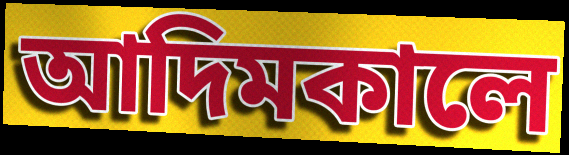
আদিমকালে